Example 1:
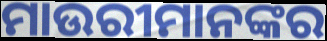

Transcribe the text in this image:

ମାଉରୀମାନଙ୍କର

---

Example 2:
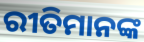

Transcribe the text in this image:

ରୀତିମାନଙ୍କ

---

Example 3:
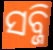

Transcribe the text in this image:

ସବ୍ଜି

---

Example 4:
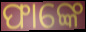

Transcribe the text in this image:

ଫାଙ୍କେ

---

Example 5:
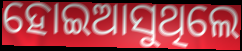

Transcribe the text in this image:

ହୋଇଆସୁଥିଲେ